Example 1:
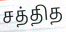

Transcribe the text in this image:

சத்தித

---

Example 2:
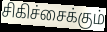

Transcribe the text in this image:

சிகிச்சைக்கும்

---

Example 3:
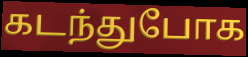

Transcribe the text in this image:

கடந்துபோக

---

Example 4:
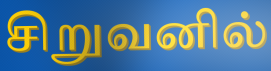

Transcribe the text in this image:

சிறுவனில்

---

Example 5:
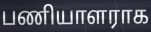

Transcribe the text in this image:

பணியாளராக